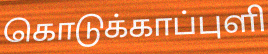
கொடுக்காப்புளி